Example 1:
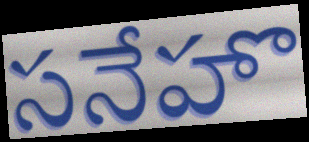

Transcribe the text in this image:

సనేహొ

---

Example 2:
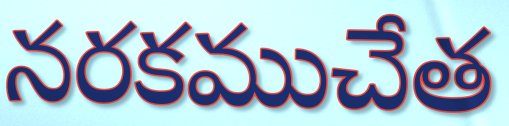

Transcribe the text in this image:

నరకముచేత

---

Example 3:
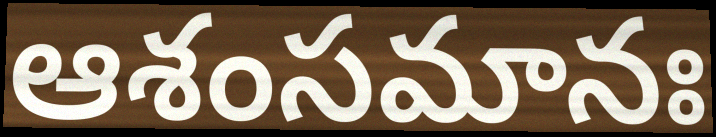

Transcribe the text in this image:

ఆశంసమానః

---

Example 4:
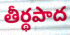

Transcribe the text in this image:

తీర్థపాద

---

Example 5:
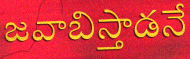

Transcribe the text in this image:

జవాబిస్తాడనే